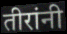
तीरांनी